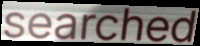
searched